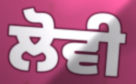
ਲੋਵੀ